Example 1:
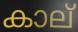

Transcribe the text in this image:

കാല്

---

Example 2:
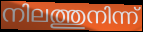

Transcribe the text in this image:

നിലത്തുനിന്ന്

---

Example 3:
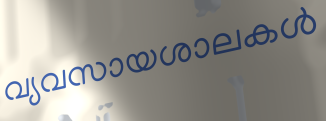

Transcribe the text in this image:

വ്യവസായശാലകൾ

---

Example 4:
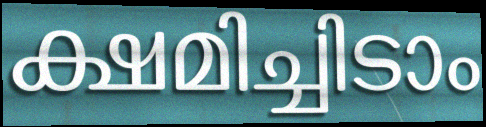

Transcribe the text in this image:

ക്ഷമിച്ചിടാം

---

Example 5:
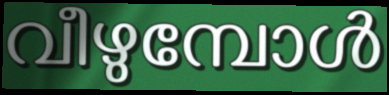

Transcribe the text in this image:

വീഴുമ്പോൾ